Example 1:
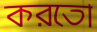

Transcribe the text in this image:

করতো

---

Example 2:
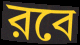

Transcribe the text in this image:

রবে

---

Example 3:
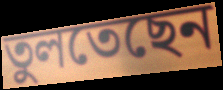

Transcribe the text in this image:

তুলতেছেন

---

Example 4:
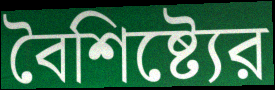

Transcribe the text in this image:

বৈশিষ্ট্যের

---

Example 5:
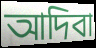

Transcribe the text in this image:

আদিবা